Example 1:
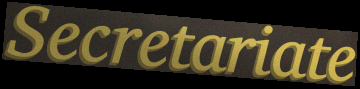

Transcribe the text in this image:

Secretariate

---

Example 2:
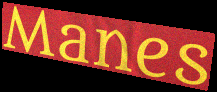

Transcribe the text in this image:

Manes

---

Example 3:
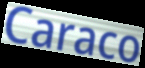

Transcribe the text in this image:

Caraco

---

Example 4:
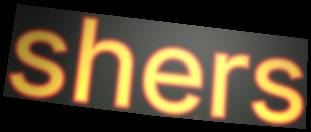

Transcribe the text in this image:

shers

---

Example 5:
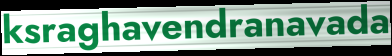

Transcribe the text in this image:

ksraghavendranavada